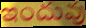
ఇందువు